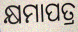
କ୍ଷମାପତ୍ର